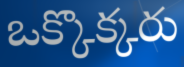
ఒక్కొక్కరు